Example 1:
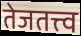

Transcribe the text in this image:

तेजतत्त्व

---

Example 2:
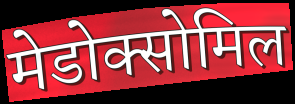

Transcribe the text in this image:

मेडोक्सोमिल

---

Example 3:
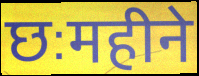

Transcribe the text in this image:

छःमहीने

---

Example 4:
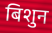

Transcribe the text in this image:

बिशुन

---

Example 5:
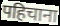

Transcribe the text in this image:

पहिचाना